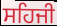
ਸਹਿਜੀ